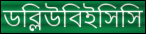
ডব্লিউবিইসিসি